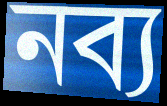
নব্য